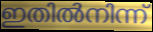
ഇതിൽനിന്ന്